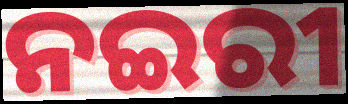
ନଇରୀ